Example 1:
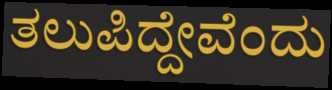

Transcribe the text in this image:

ತಲುಪಿದ್ದೇವೆಂದು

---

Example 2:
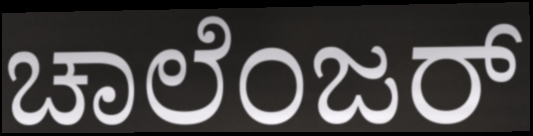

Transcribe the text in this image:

ಚಾಲೆಂಜರ್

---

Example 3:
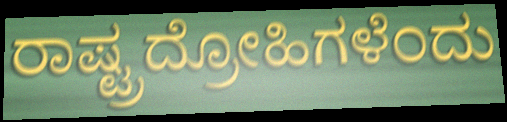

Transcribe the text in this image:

ರಾಷ್ಟ್ರದ್ರೋಹಿಗಳೆಂದು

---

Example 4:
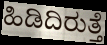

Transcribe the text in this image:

ಹಿಡಿದಿರುತ್ತೆ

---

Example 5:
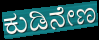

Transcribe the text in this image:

ಕುಡಿನೇಣ